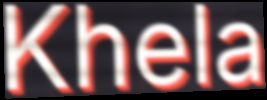
Khela